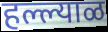
हल्ल्याळ